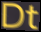
Dt